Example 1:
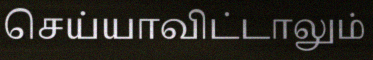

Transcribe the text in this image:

செய்யாவிட்டாலும்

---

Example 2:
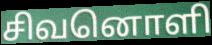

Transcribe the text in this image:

சிவனொளி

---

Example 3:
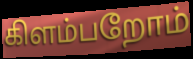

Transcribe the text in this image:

கிளம்பறோம்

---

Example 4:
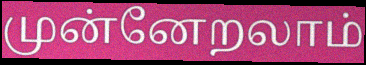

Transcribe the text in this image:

முன்னேறலாம்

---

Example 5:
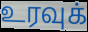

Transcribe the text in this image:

உரவுக்